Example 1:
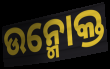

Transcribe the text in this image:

ଉନ୍ମୋକ୍ତ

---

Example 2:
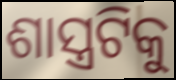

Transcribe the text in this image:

ଶାସ୍ତ୍ରଟିକୁ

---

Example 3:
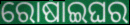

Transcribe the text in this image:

ରୋଷାଇଘର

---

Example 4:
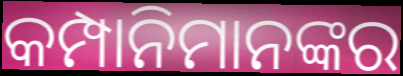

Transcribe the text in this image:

କମ୍ପାନିମାନଙ୍କର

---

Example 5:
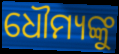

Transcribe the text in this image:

ଧୌମ୍ୟଙ୍କୁ